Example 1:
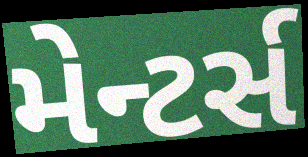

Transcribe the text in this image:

મેન્ટર્સ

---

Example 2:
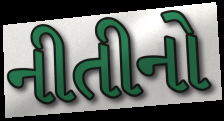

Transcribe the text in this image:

નીતીનો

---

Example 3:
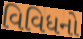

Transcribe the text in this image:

વિવિધનો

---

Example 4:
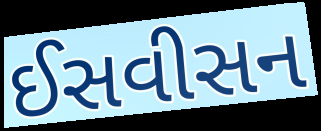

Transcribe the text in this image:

ઈસવીસન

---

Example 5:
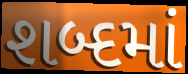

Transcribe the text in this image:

શબ્દમાં